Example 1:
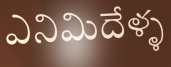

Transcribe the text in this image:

ఎనిమిదేళ్ళ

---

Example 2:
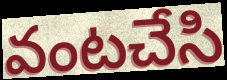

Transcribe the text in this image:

వంటచేసి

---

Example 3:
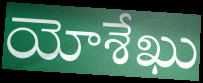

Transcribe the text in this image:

యోశేఖు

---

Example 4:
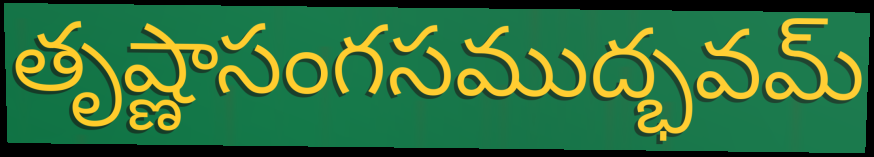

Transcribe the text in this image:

తృష్ణాసంగసముద్భవమ్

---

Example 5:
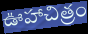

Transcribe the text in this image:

ఊహాచిత్రం